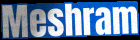
Meshram